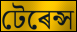
টেৰেন্স